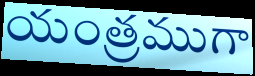
యంత్రముగా